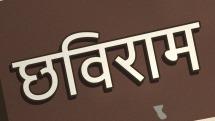
छविराम